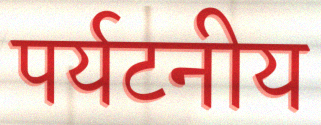
पर्यटनीय